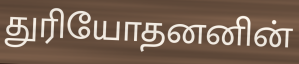
துரியோதனனின்